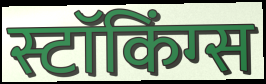
स्टॉकिंग्स